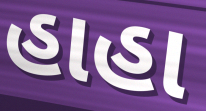
હાહા